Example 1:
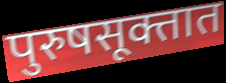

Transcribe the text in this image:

पुरुषसूक्तात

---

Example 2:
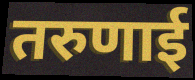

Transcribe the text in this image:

तरुणाई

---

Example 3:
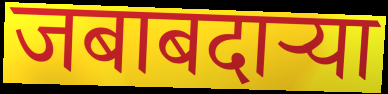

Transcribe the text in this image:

जबाबदाऱ्या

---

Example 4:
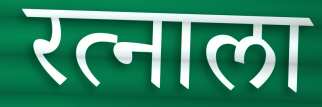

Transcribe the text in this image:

रत्नाला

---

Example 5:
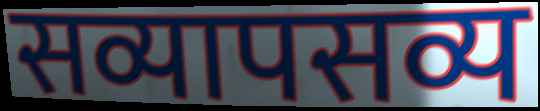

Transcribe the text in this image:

सव्यापसव्य